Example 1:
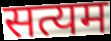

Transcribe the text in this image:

सत्यम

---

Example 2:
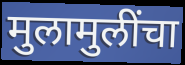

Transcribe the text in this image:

मुलामुलींचा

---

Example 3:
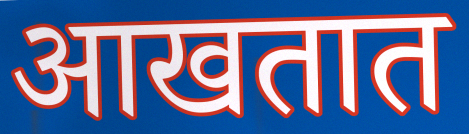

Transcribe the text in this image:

आखतात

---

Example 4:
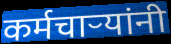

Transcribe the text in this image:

कर्मचाऱ्यांनी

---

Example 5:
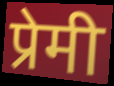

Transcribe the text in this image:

प्रेमी